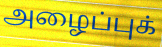
அழைப்புக்